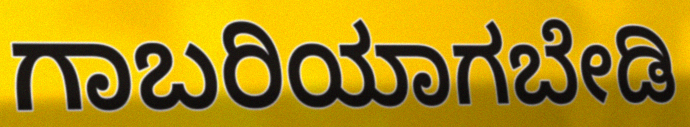
ಗಾಬರಿಯಾಗಬೇಡಿ